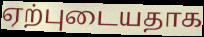
ஏற்புடையதாக